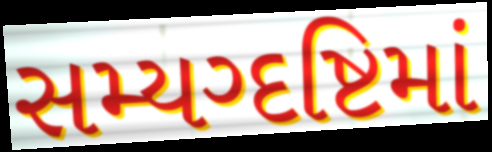
સમ્યગ્દષ્ટિમાં